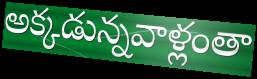
అక్కడున్నవాళ్లంతా